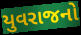
યુવરાજનો